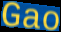
Gao